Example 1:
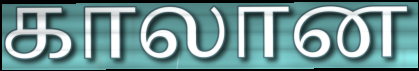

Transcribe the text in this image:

காலான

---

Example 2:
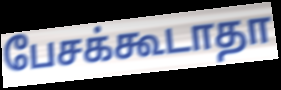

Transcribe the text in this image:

பேசக்கூடாதா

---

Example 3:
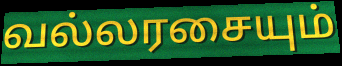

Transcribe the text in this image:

வல்லரசையும்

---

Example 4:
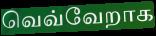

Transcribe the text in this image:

வெவ்வேறாக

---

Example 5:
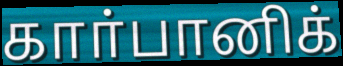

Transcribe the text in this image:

கார்பானிக்